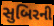
સુબિરની